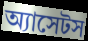
অ্যাসেটস